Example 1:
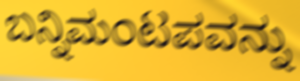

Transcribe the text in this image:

ಬನ್ನಿಮಂಟಪವನ್ನು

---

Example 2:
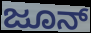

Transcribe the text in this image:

ಜೂನ್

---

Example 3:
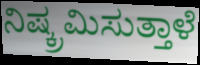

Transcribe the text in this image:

ನಿಷ್ಕ್ರಮಿಸುತ್ತಾಳೆ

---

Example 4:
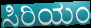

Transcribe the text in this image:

ಸಿರಿಯಂ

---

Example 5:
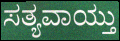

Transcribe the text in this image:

ಸತ್ಯವಾಯ್ತು